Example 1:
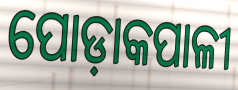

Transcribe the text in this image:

ପୋଡ଼ାକପାଳୀ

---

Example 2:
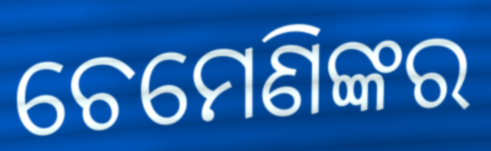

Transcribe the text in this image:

ଚେମେଣିଙ୍କର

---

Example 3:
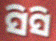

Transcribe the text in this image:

ସିସି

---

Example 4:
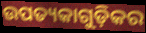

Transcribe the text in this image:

ଉପତ୍ୟକାଗୁଡ଼ିକର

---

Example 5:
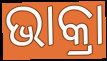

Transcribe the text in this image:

ଭାକ୍ରା